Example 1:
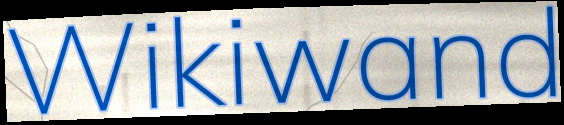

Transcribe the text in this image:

Wikiwand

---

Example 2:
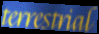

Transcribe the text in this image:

terrestrial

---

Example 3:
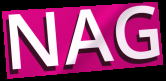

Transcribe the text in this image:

NAG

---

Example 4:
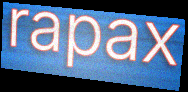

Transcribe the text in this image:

rapax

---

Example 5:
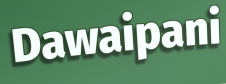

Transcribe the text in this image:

Dawaipani